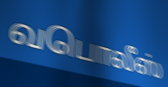
வபொலீஸ்